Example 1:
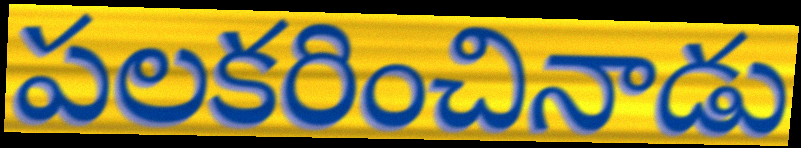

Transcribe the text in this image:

పలకరించినాడు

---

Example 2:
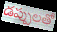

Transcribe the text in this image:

డప్పులతో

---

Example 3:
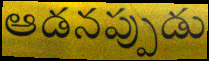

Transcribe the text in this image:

ఆడనప్పుడు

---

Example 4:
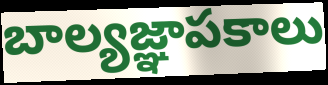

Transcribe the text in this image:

బాల్యజ్ఞాపకాలు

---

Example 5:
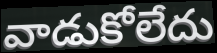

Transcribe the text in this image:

వాడుకోలేదు